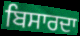
ਬਿਸਾਰਦਾ